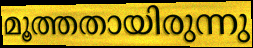
മൂത്തതായിരുന്നു